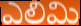
ఎలిమి